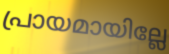
പ്രായമായില്ലേ